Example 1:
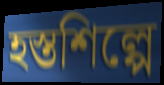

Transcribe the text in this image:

হস্তশিল্পে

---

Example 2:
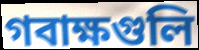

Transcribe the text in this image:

গবাক্ষগুলি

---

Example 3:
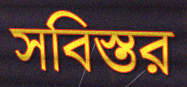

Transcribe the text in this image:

সবিস্তর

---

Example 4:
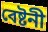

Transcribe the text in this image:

বেষ্টনী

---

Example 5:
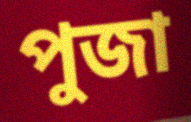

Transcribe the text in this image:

পুজা